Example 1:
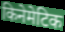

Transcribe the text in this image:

किनेमेटिक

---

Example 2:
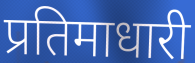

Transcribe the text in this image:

प्रतिमाधारी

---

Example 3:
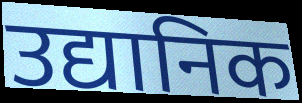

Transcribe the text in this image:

उद्यानिक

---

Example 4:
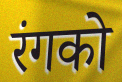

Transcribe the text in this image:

रंगको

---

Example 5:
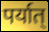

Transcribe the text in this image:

पर्यात्